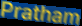
Pratham